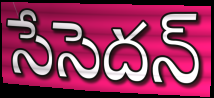
సేసెదన్